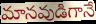
మానవుడిగానే